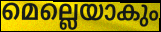
മെല്ലെയാകും